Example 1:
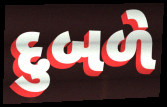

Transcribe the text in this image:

દુબળે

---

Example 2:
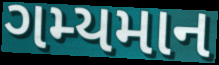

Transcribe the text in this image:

ગમ્યમાન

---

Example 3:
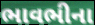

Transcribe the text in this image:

ભાવભીના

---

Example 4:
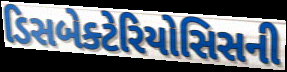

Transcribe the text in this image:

ડિસબેક્ટેરિયોસિસની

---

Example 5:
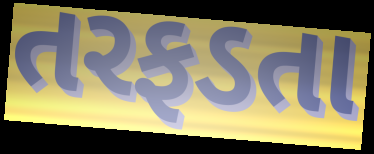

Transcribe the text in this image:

તરફડતા